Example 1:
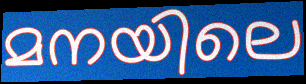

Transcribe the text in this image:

മനയിലെ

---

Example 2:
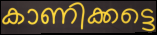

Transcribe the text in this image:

കാണിക്കട്ടെ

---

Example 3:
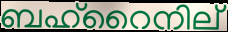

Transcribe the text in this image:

ബഹ്റൈനില്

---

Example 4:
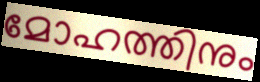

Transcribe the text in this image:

മോഹത്തിനും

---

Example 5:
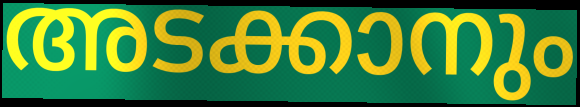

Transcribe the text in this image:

അടക്കാനും